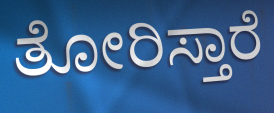
ತೋರಿಸ್ತಾರೆ